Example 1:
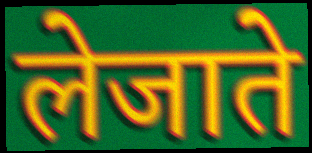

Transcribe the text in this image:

लेजाते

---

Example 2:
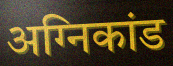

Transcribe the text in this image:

अग्‍निकांड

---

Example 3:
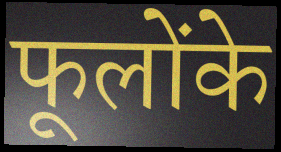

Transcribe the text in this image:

फूलोंके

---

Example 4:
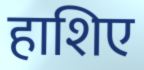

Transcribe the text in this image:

हाशिए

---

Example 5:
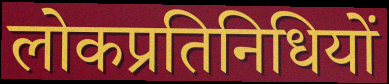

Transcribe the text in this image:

लोकप्रतिनिधियों